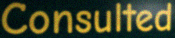
Consulted